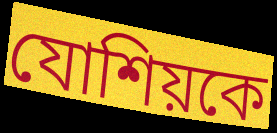
যোশিয়কে